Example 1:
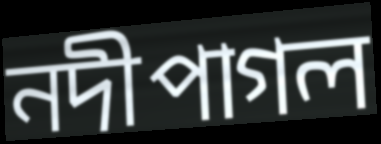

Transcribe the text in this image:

নদীপাগল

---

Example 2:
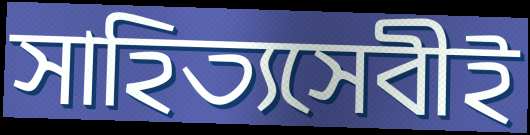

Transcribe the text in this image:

সাহিত্যসেবীই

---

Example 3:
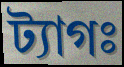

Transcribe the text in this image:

ট্যাগঃ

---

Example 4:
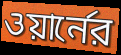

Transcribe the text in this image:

ওয়ার্নের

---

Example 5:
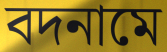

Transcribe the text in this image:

বদনামে